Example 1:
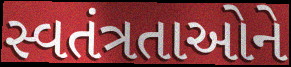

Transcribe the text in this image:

સ્વતંત્રતાઓને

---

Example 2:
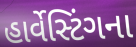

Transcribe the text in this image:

હાર્વેસ્ટિંગના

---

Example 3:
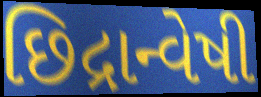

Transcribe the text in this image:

છિદ્રાન્વેષી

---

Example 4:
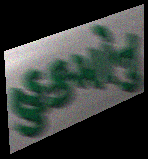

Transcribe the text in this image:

હુકમોનુ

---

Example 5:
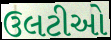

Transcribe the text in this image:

ઉલટીઓ